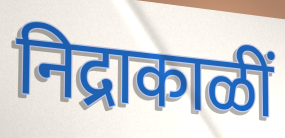
निद्राकाळीं